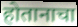
होतानाचा